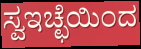
ಸ್ವಇಚ್ಛೆಯಿಂದ